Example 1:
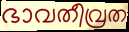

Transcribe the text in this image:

ഭാവതീവ്രത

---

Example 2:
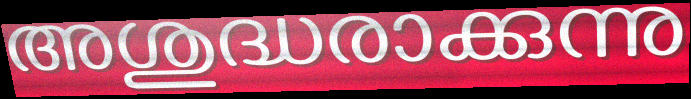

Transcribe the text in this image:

അശുദ്ധരാക്കുന്നു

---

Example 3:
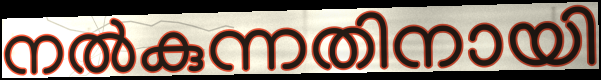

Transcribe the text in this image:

നൽകുന്നതിനായി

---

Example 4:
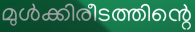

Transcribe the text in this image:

മുൾക്കിരീടത്തിന്റെ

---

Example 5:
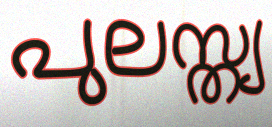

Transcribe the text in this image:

പുലസ്ത്യ